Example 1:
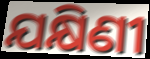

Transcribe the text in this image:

ଯକ୍ଷିଣୀ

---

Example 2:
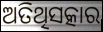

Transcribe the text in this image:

ଅତିଥିସତ୍କାର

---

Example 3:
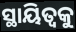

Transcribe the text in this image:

ସ୍ଥାୟିତ୍ୱକୁ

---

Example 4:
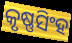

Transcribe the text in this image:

କୃଷ୍ଣସିଂହ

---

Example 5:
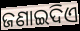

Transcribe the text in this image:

ଜଣାଇଦିଏ